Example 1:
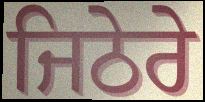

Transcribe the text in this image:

ਜਿਠੇਰੇ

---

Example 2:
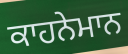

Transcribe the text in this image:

ਕਾਹਨੇਮਾਨ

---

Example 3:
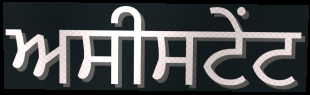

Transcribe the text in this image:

ਅਸੀਸਟੇਂਟ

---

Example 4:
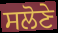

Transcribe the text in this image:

ਸਲੋਣੇ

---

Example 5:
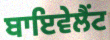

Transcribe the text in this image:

ਬਾਇਵੇਲੈਂਟ